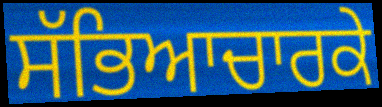
ਸੱਭਿਆਚਾਰਕੇ